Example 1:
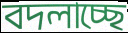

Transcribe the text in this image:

বদলাচ্ছে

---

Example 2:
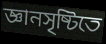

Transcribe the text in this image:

জ্ঞানসৃষ্টিতে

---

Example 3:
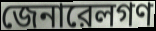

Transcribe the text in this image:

জেনারেলগণ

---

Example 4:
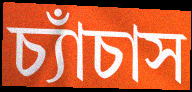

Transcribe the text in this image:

চ্যাঁচাস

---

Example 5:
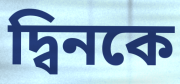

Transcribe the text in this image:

দ্বিনকে